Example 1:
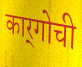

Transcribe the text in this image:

कार्गोची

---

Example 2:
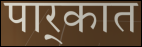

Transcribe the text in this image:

पार्कात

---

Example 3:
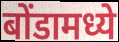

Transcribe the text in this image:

बोंडामध्ये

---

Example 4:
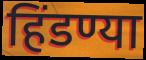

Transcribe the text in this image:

हिंडण्या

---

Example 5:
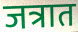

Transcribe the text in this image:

जत्रात